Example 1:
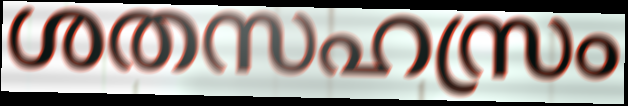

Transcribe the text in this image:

ശതസഹസ്രം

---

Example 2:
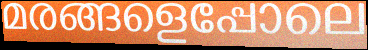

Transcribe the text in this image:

മരങ്ങളെപ്പോലെ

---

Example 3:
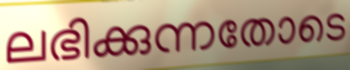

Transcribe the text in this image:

ലഭിക്കുന്നതോടെ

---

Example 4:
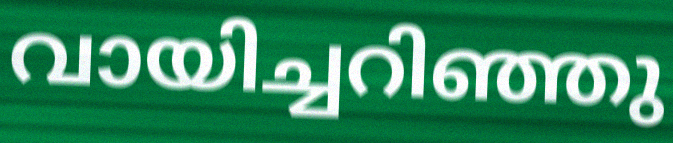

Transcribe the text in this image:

വായിച്ചറിഞ്ഞു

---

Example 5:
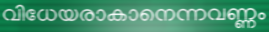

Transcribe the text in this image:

വിധേയരാകാനെന്നവണ്ണം